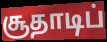
சூதாடிப்